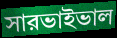
সারভাইভাল